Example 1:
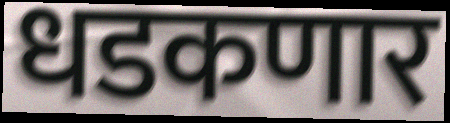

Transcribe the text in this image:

धडकणार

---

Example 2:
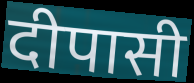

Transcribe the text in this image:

दीपासी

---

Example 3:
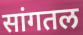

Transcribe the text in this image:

सांगतल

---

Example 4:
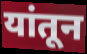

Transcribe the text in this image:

यांतून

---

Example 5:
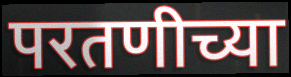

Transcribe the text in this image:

परतणीच्या